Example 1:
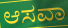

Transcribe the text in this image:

ಆಸವಾ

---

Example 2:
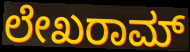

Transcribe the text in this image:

ಲೇಖರಾಮ್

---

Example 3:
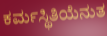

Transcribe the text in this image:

ಕರ್ಮಸ್ಥಿತಿಯೆನುತ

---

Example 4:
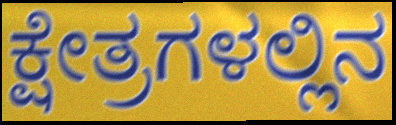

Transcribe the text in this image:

ಕ್ಷೇತ್ರಗಳಲ್ಲಿನ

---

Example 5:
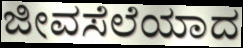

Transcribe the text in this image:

ಜೀವಸೆಲೆಯಾದ